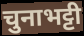
चुनाभट्टी